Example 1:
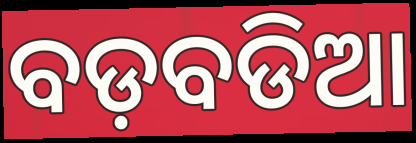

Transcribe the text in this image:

ବଡ଼ବଡିଆ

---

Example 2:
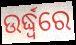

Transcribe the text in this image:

ଉର୍ଦ୍ଧ୍ଵରେ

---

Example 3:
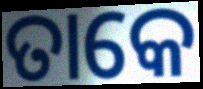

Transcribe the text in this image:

ତାକେ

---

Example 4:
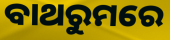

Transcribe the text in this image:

ବାଥରୁମରେ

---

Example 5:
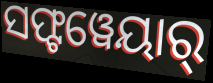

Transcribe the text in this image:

ସଫ୍ଟୱେୟାର୍